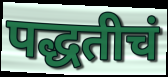
पद्धतीचं